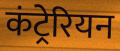
कंट्रेरियन